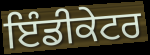
ਇੰਡੀਕੇਟਰ